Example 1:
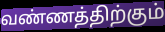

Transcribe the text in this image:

வண்ணத்திற்கும்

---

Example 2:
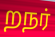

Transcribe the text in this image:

றநர்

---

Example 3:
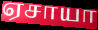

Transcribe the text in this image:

ஏசாயா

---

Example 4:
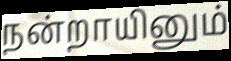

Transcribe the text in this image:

நன்றாயினும்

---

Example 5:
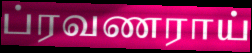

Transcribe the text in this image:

ப்ரவணராய்